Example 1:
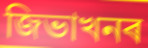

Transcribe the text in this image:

জিভাখনৰ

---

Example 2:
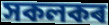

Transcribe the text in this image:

সকলকৰ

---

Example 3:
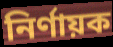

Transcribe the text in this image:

নিৰ্ণায়ক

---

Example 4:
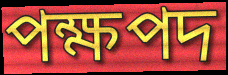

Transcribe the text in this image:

পক্ষপদ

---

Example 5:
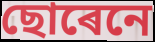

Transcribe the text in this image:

ছোৰেনে